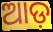
ଆଡ଼